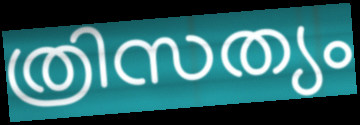
ത്രിസത്യം